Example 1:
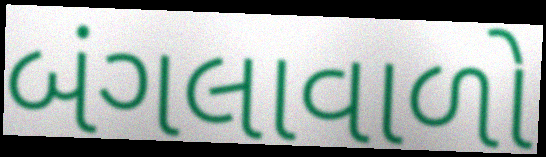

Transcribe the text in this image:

બંગલાવાળો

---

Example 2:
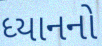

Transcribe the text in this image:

ધ્યાનનો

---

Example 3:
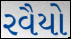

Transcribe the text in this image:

રવૈયો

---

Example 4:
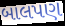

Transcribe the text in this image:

બાલપણ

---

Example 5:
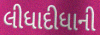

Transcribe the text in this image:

લીધાદીધાની